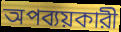
অপব্যয়কারী